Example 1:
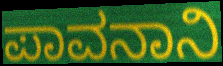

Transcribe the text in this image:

ಪಾವನಾನಿ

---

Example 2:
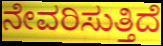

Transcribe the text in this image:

ನೇವರಿಸುತ್ತಿದೆ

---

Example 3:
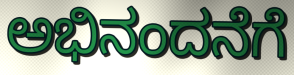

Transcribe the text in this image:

ಅಭಿನಂದನೆಗೆ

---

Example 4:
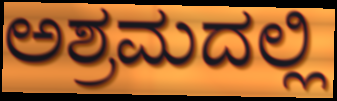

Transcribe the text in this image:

ಅಶ್ರಮದಲ್ಲಿ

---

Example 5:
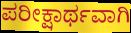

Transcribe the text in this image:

ಪರೀಕ್ಷಾರ್ಥವಾಗಿ